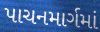
પાચનમાર્ગમાં